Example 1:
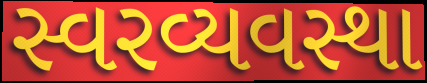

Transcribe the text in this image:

સ્વરવ્યવસ્થા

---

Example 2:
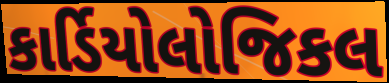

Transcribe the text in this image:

કાર્ડિયોલોજિકલ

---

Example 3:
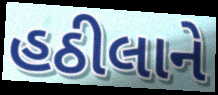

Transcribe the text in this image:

હઠીલાને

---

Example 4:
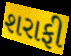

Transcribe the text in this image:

શરાફી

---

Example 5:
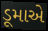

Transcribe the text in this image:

ડૂમાએ